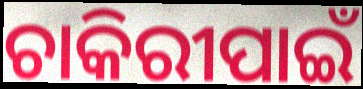
ଚାକିରୀପାଇଁ